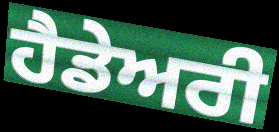
ਹੈਡੇਅਰੀ